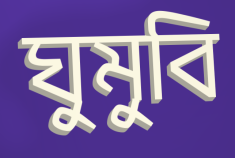
ঘুমুবি